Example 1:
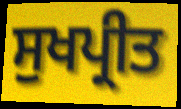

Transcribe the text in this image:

ਸੁਖਪ੍ਰੀਤ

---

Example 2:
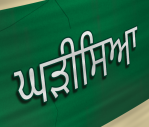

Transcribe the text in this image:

ਘੜੀਸਿਆ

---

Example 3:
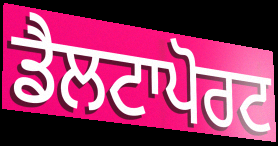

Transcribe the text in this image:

ਡੈਲਟਾਪੋਰਟ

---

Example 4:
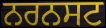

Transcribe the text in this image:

ਨਰਨਸਟ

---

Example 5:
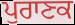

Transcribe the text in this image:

ਪੁਰਾਣਕ